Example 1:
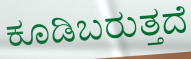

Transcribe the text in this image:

ಕೂಡಿಬರುತ್ತದೆ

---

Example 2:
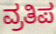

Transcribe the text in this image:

ವ್ರತಿಪ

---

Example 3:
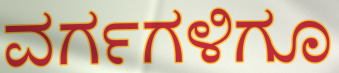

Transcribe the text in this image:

ವರ್ಗಗಳಿಗೂ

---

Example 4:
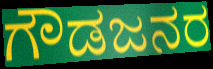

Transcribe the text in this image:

ಗೌಡಜನರ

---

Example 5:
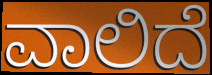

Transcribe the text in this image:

ವಾಲಿದೆ